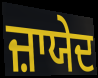
ਜ਼ਾਯੇਦ